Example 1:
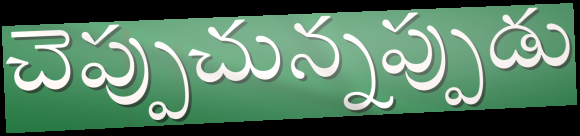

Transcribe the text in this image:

చెప్పుచున్నప్పుడు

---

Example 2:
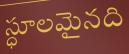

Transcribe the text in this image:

స్ధూలమైనది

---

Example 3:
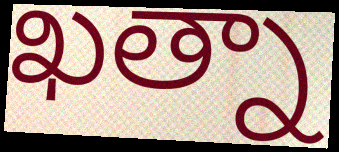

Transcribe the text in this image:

ఖత్నా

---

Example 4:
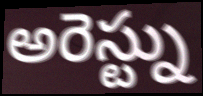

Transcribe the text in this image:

అరెస్ట్ను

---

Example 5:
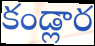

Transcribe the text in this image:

కండ్లార